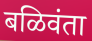
बळिवंता